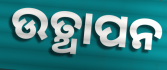
ଉତ୍ଥାପନ